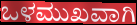
ಒಳಮುಖವಾಗಿ